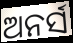
ଅନର୍ସ